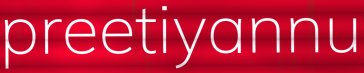
preetiyannu